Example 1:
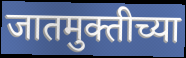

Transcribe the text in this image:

जातमुक्तीच्या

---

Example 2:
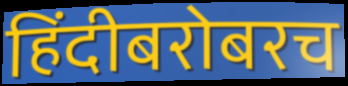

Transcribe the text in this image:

हिंदीबरोबरच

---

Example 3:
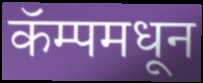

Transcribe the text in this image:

कॅम्पमधून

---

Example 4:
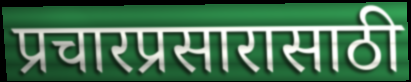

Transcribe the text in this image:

प्रचारप्रसारासाठी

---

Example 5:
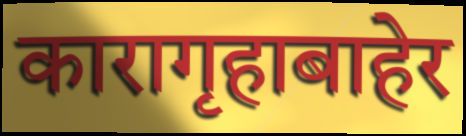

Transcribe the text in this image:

कारागृहाबाहेर